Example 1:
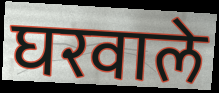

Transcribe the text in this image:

घरवाले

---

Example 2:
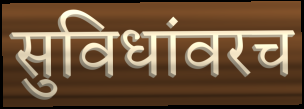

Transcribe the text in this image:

सुविधांवरच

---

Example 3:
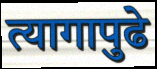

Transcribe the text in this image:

त्यागापुढे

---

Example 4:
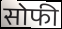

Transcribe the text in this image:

सोफी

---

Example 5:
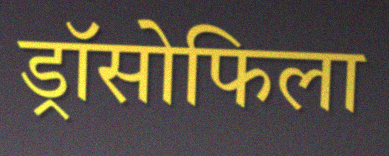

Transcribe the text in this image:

ड्रॉसोफिला